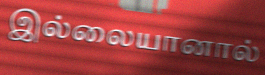
இல்லையானால்